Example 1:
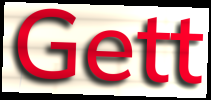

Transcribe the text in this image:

Gett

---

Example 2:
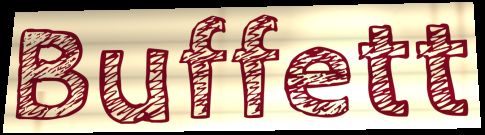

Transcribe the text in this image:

Buffett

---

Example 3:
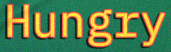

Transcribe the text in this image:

Hungry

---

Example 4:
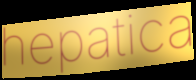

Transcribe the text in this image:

hepatica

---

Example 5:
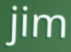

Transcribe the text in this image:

jim